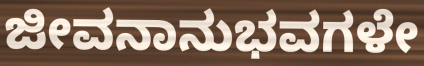
ಜೀವನಾನುಭವಗಳೇ